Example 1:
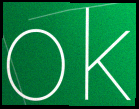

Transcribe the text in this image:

ok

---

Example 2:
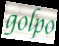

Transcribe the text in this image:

golpo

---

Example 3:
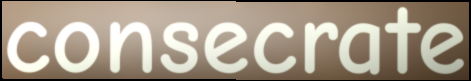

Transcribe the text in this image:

consecrate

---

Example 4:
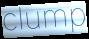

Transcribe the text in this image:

clump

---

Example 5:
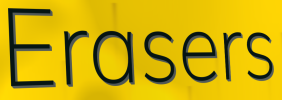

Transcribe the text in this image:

Erasers